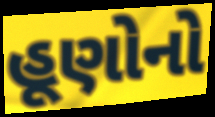
હૂણોનો